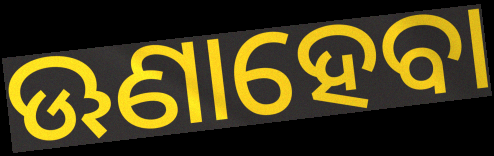
ଊଣାହେବା